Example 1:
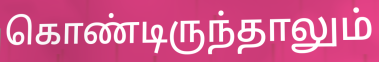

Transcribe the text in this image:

கொண்டிருந்தாலும்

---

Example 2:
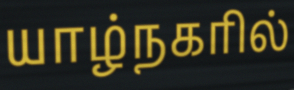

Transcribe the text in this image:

யாழ்நகரில்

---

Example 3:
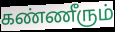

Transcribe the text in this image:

கண்ணீரும்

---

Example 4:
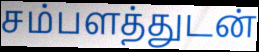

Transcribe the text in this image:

சம்பளத்துடன்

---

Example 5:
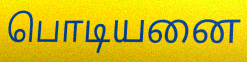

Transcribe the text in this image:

பொடியனை